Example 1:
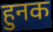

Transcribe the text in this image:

हुनक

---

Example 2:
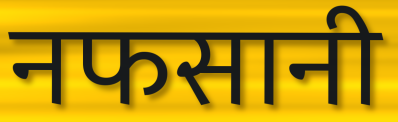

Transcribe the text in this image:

नफसानी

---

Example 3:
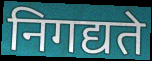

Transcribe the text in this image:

निगद्यते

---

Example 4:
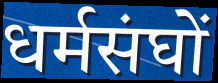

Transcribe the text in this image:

धर्मसंघों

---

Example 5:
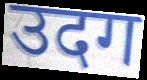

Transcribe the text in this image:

उदग